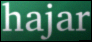
hajar